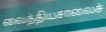
வைத்தியசாலைச்